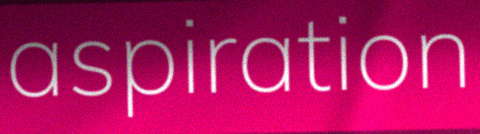
aspiration